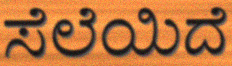
ಸೆಲೆಯಿದೆ